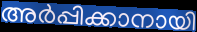
അർപ്പിക്കാനായി